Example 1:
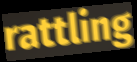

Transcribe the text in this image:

rattling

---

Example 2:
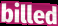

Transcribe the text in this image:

billed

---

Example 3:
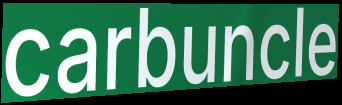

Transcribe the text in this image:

carbuncle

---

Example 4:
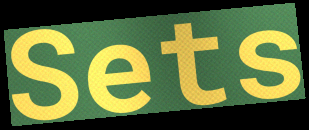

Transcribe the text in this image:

Sets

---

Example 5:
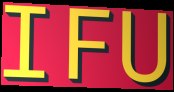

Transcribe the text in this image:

IFU